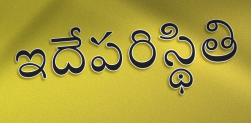
ఇదేపరిస్థితి